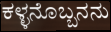
ಕಳ್ಳನೊಬ್ಬನನು